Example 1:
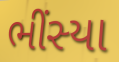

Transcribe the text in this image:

ભીંસ્યા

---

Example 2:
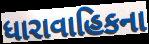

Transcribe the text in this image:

ધારાવાહિકના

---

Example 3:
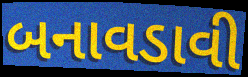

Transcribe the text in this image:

બનાવડાવી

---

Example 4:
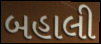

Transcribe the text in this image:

બહાલી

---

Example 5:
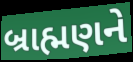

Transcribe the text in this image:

બ્રાહ્મણને